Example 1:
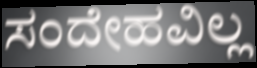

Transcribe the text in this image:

ಸಂದೇಹವಿಲ್ಲ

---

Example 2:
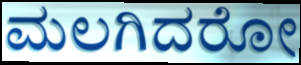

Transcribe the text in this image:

ಮಲಗಿದರೋ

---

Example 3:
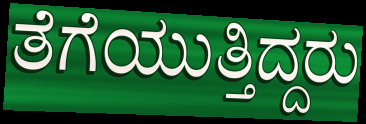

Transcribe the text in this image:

ತೆಗೆಯುತ್ತಿದ್ದರು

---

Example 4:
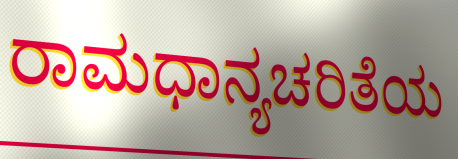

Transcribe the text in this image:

ರಾಮಧಾನ್ಯಚರಿತೆಯ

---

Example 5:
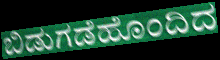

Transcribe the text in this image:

ಬಿಡುಗಡೆಹೊಂದಿದ